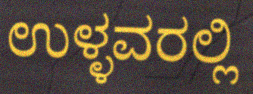
ಉಳ್ಳವರಲ್ಲಿ